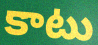
కాటు